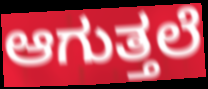
ಆಗುತ್ತಲೆ